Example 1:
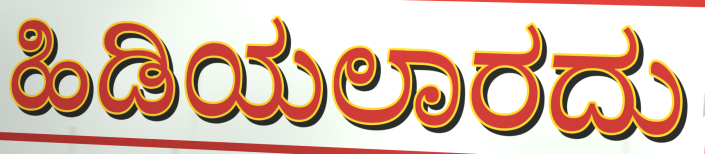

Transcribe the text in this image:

ಹಿಡಿಯಲಾರದು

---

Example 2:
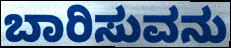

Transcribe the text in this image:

ಬಾರಿಸುವನು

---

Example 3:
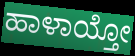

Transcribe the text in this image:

ಹಾಳಾಯ್ತೋ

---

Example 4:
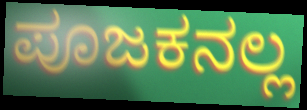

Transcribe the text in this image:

ಪೂಜಕನಲ್ಲ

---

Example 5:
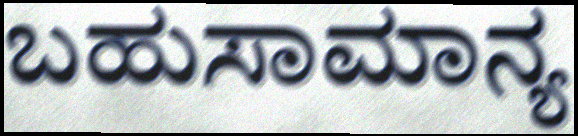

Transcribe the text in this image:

ಬಹುಸಾಮಾನ್ಯ